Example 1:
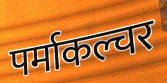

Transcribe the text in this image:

पर्माकल्चर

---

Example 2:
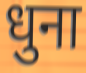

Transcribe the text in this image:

धुना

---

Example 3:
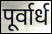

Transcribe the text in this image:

पूर्वार्ध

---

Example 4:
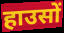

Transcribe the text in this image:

हाउसों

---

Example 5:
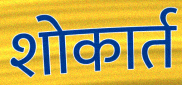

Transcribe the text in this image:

शोकार्त